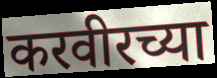
करवीरच्या